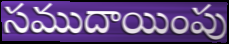
సముదాయింపు